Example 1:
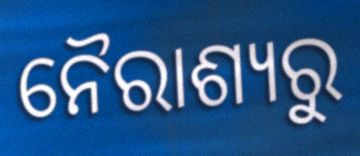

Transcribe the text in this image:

ନୈରାଶ୍ୟରୁ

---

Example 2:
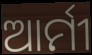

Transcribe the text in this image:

ଆର୍ମୀ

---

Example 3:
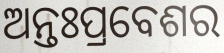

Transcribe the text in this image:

ଅନ୍ତଃପ୍ରବେଶର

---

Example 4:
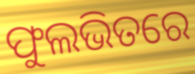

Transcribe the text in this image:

ଫୁଲଭିତରେ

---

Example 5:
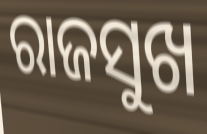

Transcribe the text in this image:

ରାଜସୁଖ